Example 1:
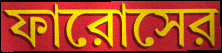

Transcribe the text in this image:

ফারোসের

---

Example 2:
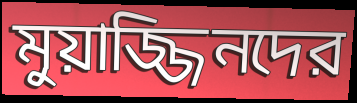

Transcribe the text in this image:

মুয়াজ্জিনদের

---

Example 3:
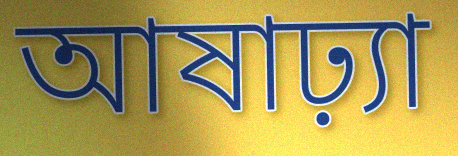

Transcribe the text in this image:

আষাঢ়্যা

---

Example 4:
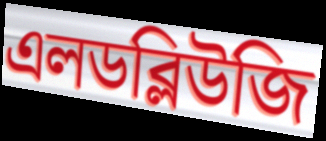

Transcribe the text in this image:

এলডব্লিউজি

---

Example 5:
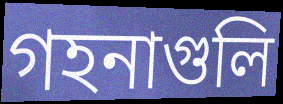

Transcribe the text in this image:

গহনাগুলি